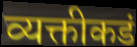
व्यक्तीकडं